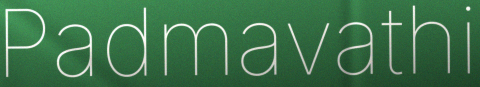
Padmavathi